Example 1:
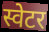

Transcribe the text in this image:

स्वेटर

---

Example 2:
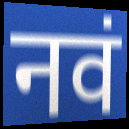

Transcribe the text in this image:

नवं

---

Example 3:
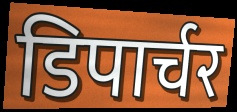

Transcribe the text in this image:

डिपार्चर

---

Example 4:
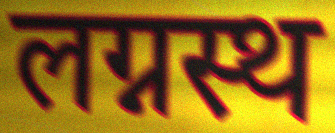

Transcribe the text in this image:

लग्नस्थ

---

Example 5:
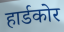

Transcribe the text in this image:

हार्डकोर